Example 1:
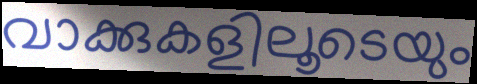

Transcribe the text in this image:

വാക്കുകളിലൂടെയും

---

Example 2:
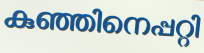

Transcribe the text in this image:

കുഞ്ഞിനെപ്പറ്റി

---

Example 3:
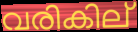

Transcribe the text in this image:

വരികില്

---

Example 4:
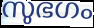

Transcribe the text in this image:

സുഭഗം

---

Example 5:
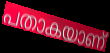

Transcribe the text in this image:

പതാകയാണ്